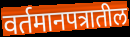
वर्तमानपत्रातील